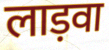
लाड़वा